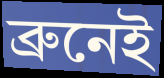
ব্রুনেই